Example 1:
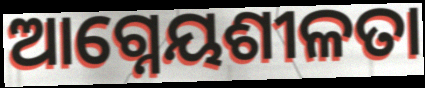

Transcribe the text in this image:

ଆଗ୍ନେୟଶୀଳତା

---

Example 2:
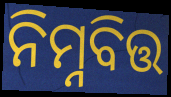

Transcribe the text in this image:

ନିମ୍ନବିତ୍ତ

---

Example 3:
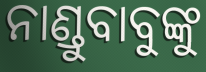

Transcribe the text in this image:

ନାଣ୍ଡୁବାବୁଙ୍କୁ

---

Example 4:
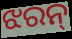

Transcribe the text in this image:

ଝରନ୍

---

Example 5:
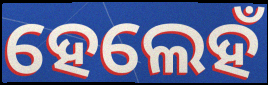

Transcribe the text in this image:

ହେଲେହଁ